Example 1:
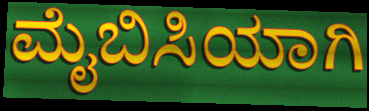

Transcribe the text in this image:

ಮೈಬಿಸಿಯಾಗಿ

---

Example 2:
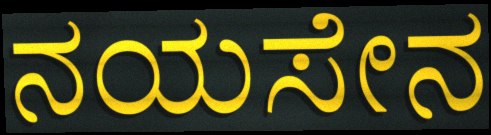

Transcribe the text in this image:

ನಯಸೇನ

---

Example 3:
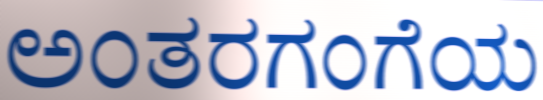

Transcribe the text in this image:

ಅಂತರಗಂಗೆಯ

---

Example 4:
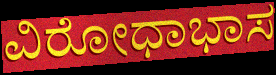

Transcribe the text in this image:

ವಿರೋಧಾಭಾಸ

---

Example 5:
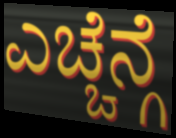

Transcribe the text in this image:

ಎಚ್ಚೆನ್ಗೆ